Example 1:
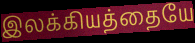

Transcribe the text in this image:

இலக்கியத்தையே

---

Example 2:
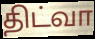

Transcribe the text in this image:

திட்வா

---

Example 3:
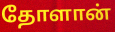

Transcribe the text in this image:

தோளான்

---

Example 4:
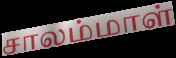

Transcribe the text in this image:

சாலம்மாள்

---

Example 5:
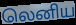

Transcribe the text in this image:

லெனிய